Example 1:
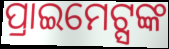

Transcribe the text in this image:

ପ୍ରାଇମେଟ୍ସଙ୍କ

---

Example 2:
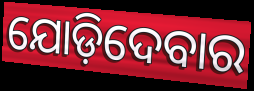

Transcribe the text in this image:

ଯୋଡ଼ିଦେବାର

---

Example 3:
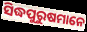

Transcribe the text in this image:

ସିଦ୍ଧପୁରୁଷମାନେ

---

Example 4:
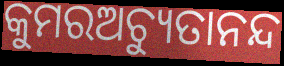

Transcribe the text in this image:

କୁମରଅଚ୍ୟୁତାନନ୍ଦ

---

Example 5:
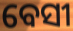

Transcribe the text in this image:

ବେସୀ